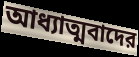
আধ্যাত্মবাদের